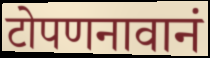
टोपणनावानं